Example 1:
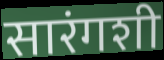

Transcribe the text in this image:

सारंगशी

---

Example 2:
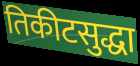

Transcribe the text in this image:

तिकीटसुद्धा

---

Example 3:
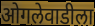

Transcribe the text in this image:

ओगलेवाडीला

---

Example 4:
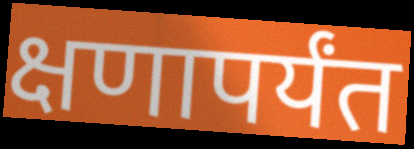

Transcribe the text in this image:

क्षणापर्यंत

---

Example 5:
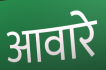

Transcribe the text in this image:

आवारे